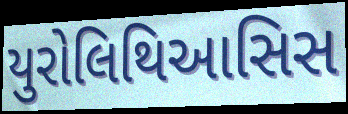
યુરોલિથિઆસિસ